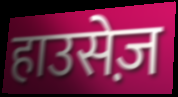
हाउसेज़